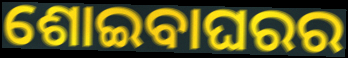
ଶୋଇବାଘରର